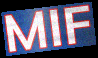
MIF